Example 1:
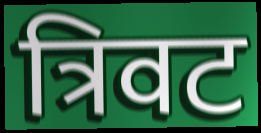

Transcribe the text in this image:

त्रिवट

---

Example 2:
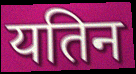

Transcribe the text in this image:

यतिन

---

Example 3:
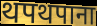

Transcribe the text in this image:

थपथपाना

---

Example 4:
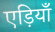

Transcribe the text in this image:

एड़ियाँ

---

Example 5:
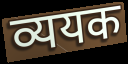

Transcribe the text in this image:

व्ययक